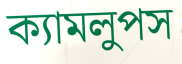
ক্যামলুপস